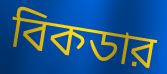
বিকডার